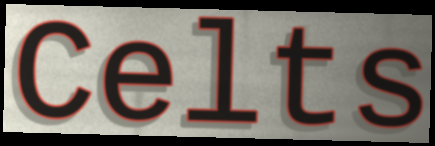
Celts